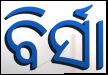
ବିର୍ସା